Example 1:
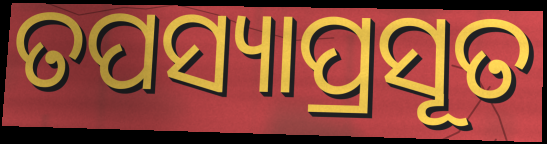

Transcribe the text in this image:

ତପସ୍ୟାପ୍ରସୂତ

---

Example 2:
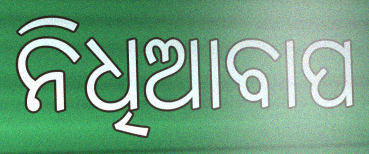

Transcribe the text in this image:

ନିଧିଆବାପ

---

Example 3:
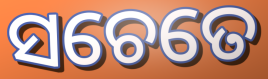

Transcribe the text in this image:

ସଚେତେ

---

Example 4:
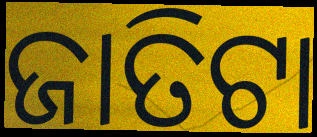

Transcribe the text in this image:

ଜାତିଟା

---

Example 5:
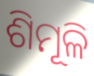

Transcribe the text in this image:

ଶିମୂଳି